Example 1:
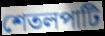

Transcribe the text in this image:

শেতলপাটি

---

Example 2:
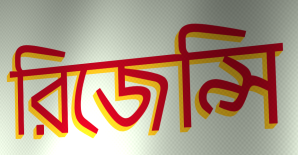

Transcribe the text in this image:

রিজেন্সি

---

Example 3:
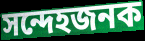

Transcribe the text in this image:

সন্দেহজনক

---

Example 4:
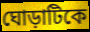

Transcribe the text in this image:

ঘোড়াটিকে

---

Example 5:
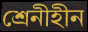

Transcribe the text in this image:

শ্রেনীহীন